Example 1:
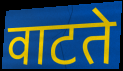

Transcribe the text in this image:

वाटते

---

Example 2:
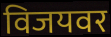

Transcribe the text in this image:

विजयवर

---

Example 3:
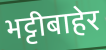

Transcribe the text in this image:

भट्टीबाहेर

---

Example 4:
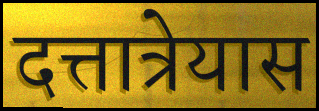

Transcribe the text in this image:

दत्तात्रेयास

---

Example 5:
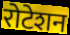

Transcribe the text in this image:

रोटेशन